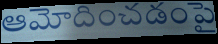
ఆమోదించడంపై